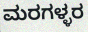
ಮರಗಳ್ಳರ